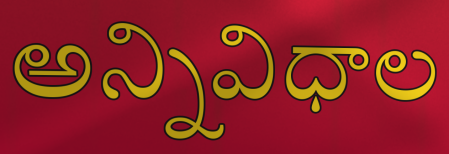
అన్నివిధాల